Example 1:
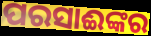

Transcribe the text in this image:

ପରସାଈଙ୍କର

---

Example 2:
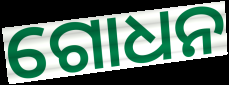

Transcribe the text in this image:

ଗୋଧନ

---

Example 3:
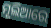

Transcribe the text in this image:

ମୂଲିଆରେ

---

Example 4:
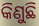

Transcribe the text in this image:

କିଣୁଛି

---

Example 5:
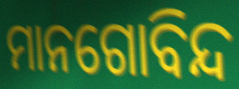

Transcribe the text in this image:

ମାନଗୋବିନ୍ଦ